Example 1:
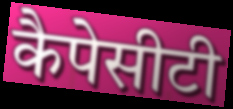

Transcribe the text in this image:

कैपेसीटी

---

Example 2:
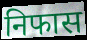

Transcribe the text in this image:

निफास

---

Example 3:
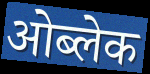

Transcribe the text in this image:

ओब्लेक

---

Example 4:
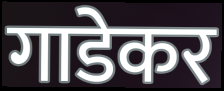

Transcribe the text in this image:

गाडेकर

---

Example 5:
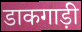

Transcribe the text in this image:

डाकगाड़ी